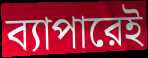
ব্যাপারেই